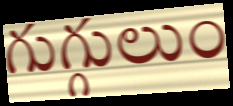
గుగ్గులుం